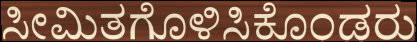
ಸೀಮಿತಗೊಳಿಸಿಕೊಂಡರು